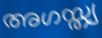
അഗസ്ത്യ